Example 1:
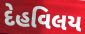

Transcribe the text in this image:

દેહવિલય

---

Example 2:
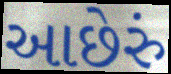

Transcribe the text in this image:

આછેરું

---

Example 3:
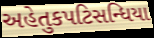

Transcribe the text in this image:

અહેતુકપટિસન્ધિયા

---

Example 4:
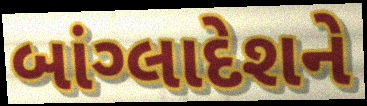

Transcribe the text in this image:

બાંગ્લાદેશને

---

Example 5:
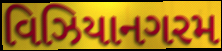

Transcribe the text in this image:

વિઝિયાનગરમ